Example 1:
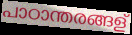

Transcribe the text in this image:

പാഠാന്തരങ്ങള്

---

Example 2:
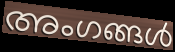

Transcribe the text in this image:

അംഗങ്ങൾ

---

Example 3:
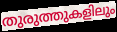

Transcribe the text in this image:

തുരുത്തുകളിലും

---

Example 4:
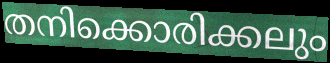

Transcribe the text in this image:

തനിക്കൊരിക്കലും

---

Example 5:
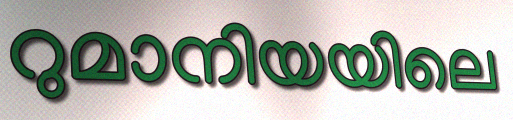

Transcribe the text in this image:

റുമാനിയയിലെ